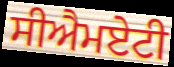
ਸੀਐਮਏਟੀ